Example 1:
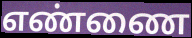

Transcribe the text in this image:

எண்ணை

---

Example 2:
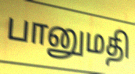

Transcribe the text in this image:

பானுமதி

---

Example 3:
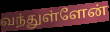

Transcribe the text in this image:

வந்துள்ளேன்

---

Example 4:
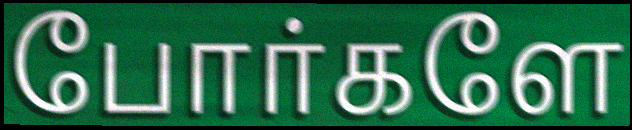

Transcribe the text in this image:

போர்களே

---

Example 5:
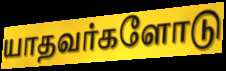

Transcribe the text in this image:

யாதவர்களோடு